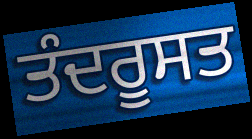
ਤੰਦਰੂਸਤ